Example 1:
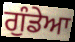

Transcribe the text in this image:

ਗੁੰਡੇਆ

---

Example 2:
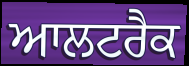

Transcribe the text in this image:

ਆਲਟਰੈਕ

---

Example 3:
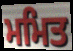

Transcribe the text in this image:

ਮਮਿਤ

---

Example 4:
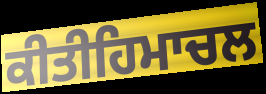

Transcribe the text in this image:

ਕੀਤੀਹਿਮਾਚਲ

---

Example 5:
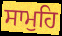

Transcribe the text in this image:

ਸਾਮੁਹਿ